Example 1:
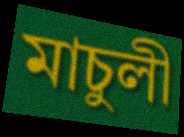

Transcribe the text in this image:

মাচুলী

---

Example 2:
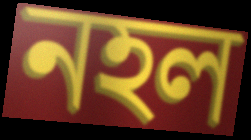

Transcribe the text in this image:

নহল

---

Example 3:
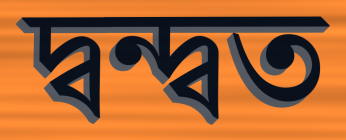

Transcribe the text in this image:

দ্বন্দ্বত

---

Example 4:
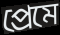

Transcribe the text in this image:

প্ৰেমে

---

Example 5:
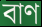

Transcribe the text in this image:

বাণ